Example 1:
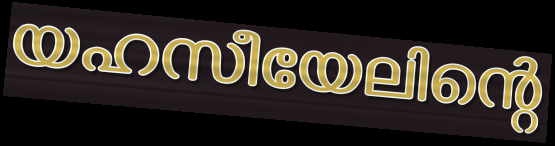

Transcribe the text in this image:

യഹസീയേലിന്റെ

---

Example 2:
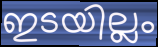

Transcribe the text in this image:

ഇടയില്ലം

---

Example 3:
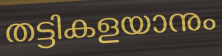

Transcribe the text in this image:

തട്ടികളയാനും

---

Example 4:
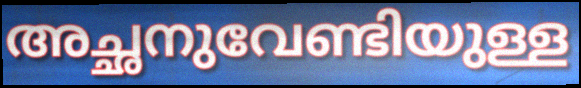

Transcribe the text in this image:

അച്ഛനുവേണ്ടിയുള്ള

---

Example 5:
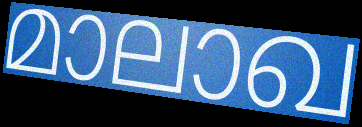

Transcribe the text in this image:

മാലാഖ